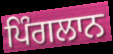
ਪਿੰਗਲਾਨ